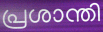
പ്രശാന്തി